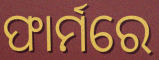
ଫାର୍ମରେ